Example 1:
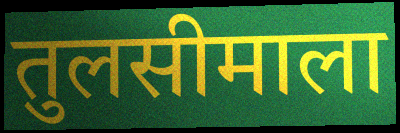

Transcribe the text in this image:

तुलसीमाला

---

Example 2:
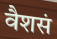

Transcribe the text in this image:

वैशसं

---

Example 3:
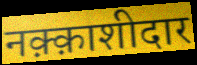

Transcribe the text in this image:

नक़्क़ाशीदार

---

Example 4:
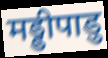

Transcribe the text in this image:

मड्डीपाडु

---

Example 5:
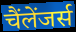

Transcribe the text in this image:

चैंलेंजर्स